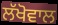
ਲੱਖੋਵਾਲ